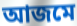
আজমে